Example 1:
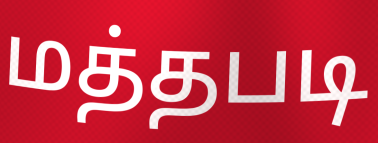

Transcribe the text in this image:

மத்தபடி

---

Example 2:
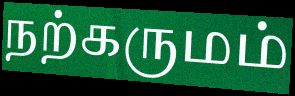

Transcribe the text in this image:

நற்கருமம்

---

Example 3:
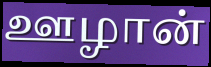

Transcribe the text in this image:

ஊழான்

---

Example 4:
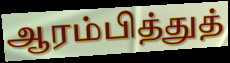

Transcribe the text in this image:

ஆரம்பித்துத்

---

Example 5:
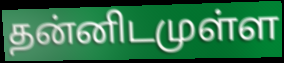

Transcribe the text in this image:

தன்னிடமுள்ள